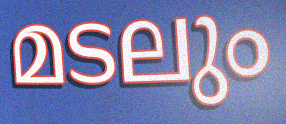
മടലും